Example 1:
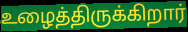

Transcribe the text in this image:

உழைத்திருக்கிறார்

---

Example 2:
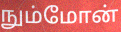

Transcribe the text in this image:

நும்மோன்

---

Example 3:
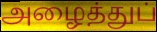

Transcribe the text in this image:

அழைத்துப்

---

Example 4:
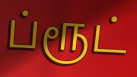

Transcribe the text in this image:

ப்ரூட்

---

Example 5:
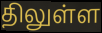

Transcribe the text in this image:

திலுள்ள